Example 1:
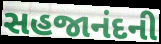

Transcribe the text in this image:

સહજાનંદની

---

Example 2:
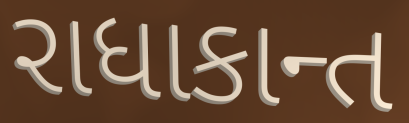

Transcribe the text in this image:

રાધાકાન્ત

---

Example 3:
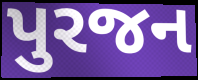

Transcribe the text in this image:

પુરજન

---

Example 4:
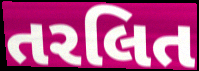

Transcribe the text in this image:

તરલિત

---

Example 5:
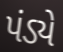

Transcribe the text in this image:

પંડ્યે